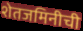
शेतजमिनीची